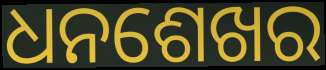
ଧନଶେଖର